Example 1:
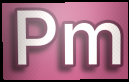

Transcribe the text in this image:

Pm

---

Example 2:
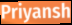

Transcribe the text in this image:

Priyansh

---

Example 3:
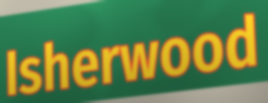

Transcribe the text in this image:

Isherwood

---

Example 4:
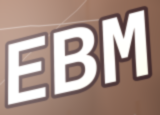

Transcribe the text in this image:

EBM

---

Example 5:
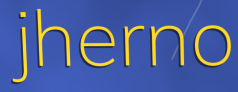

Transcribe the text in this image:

jherno